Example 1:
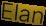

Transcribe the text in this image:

Elan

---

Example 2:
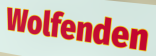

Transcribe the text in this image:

Wolfenden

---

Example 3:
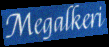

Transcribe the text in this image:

Megalkeri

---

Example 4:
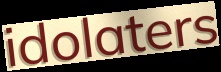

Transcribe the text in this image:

idolaters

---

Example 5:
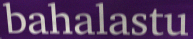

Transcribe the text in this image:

bahalastu